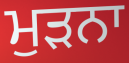
ਮੁੜਨਾ